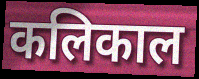
कलिकाल